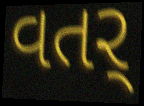
વતર્